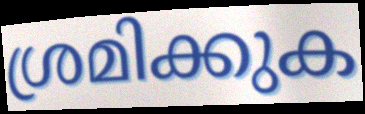
ശ്രമിക്കുക